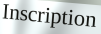
Inscription